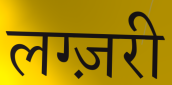
लग्ज़री